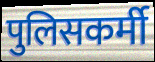
पुलिसकर्मी